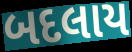
બદલાય